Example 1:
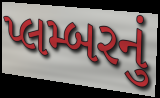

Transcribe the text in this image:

પ્લમ્બરનું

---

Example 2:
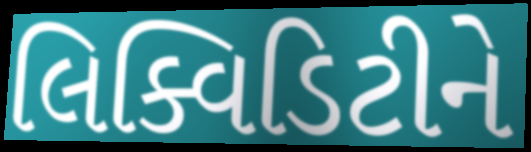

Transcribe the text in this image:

લિક્વિડિટીને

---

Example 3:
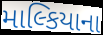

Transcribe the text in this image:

માલ્કિયાના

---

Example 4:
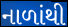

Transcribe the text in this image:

નાળાંથી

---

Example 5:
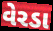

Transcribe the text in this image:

વેરડા